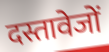
दस्तावेजों